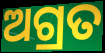
ଅଗ୍ରତ